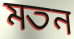
মতন